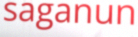
saganun